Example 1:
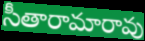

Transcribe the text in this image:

సీతారామారావు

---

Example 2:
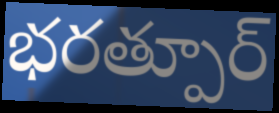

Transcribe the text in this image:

భరత్పూర్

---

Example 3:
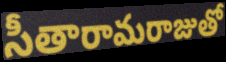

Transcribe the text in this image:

సీతారామరాజుతో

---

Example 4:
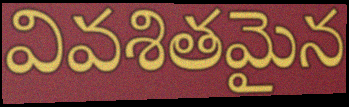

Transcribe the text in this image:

వివశితమైన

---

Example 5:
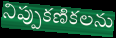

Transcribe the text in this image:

నిప్పుకణికలను